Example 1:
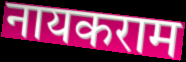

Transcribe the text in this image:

नायकराम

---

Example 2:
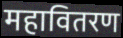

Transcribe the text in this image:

महावितरण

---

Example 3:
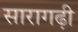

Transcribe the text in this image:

सारागढ़ी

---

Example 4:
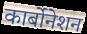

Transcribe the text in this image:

कार्बोनेशन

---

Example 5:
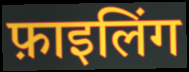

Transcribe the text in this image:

फ़ाइलिंग